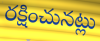
రక్షించునట్లు